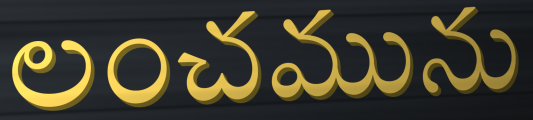
లంచమును